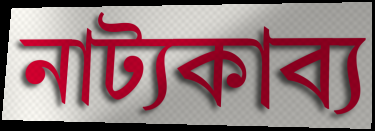
নাট্যকাব্য